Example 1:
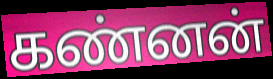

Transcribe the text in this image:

கண்னன்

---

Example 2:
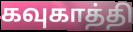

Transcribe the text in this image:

கவுகாத்தி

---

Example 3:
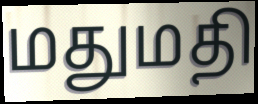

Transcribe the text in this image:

மதுமதி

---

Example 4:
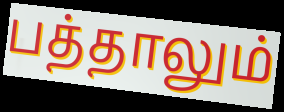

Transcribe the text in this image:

பத்தாலும்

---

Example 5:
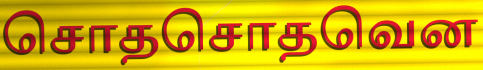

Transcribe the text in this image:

சொதசொதவென